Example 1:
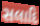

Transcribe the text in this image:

સલાદિ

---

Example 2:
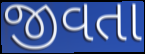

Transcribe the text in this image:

જીવતા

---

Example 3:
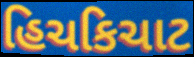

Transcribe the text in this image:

હિચકિચાટ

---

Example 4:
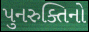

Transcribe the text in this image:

પુનરુક્તિનો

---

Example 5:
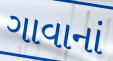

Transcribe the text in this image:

ગાવાનાં